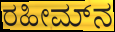
ರಹೀಮ್‌ನ